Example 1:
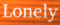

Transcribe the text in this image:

Lonely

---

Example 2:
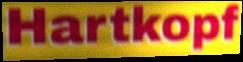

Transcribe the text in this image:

Hartkopf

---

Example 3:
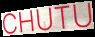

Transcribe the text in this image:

CHUTU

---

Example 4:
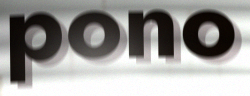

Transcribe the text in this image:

pono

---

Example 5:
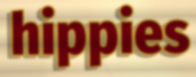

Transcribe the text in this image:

hippies